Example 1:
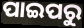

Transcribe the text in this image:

ପାଇପରୁ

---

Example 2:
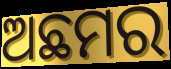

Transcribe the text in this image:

ଅଛମର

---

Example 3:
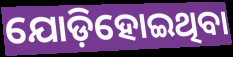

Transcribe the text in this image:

ଯୋଡ଼ିହୋଇଥିବା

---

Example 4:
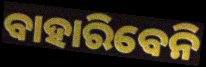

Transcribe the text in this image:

ବାହାରିବେନି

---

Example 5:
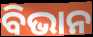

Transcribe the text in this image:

ବିଭାନ